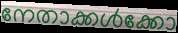
നേതാക്കൾക്കോ